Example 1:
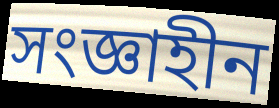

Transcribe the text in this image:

সংজ্ঞাহীন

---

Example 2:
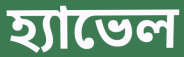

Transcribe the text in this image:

হ্যাভেল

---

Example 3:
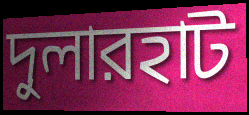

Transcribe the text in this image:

দুলারহাট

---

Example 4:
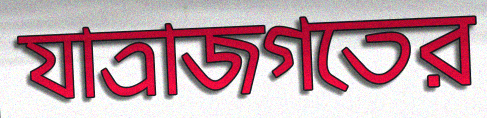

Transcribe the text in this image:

যাত্রাজগতের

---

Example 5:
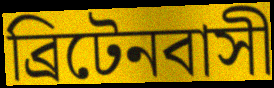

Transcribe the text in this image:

ব্রিটেনবাসী